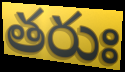
తరుః